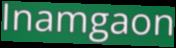
Inamgaon